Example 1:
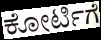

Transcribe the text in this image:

ಕೋರ್ಟಿಗೆ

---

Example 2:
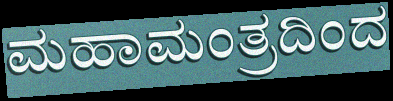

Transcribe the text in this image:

ಮಹಾಮಂತ್ರದಿಂದ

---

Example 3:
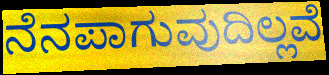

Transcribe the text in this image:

ನೆನಪಾಗುವುದಿಲ್ಲವೆ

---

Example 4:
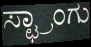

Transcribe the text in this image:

ಸ್ಟ್ರಾಂಗು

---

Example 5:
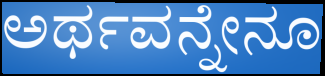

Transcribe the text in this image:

ಅರ್ಥವನ್ನೇನೂ